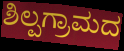
ಶಿಲ್ಪಗ್ರಾಮದ